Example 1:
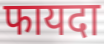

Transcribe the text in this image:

फायदा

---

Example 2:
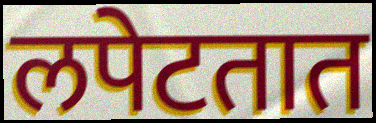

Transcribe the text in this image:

लपेटतात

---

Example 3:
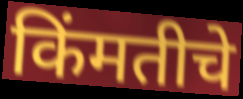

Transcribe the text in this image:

किंमतीचे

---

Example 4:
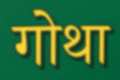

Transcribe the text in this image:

गोथा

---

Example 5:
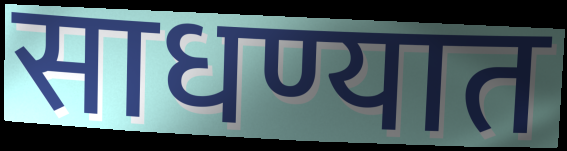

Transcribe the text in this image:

साधण्यात